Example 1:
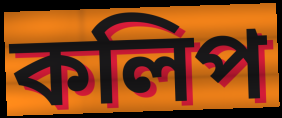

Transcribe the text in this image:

কলিপ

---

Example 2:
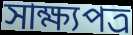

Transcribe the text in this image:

সাক্ষ্যপত্র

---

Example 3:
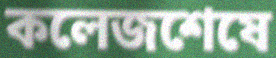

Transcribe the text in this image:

কলেজশেষে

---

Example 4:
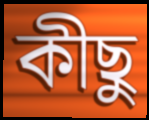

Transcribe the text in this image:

কীছু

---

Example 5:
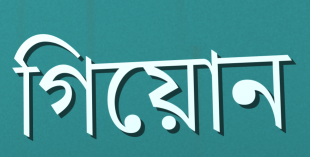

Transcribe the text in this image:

গিয়োন